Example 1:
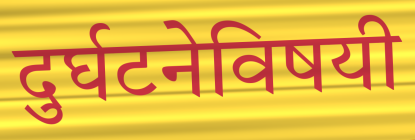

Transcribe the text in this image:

दुर्घटनेविषयी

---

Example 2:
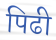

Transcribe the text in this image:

पिढी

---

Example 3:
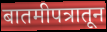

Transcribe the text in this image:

बातमीपत्रातून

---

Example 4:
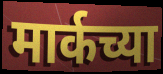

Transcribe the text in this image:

मार्कच्या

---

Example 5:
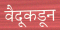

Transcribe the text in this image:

वैदूकडून